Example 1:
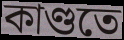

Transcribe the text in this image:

কাণ্ডতে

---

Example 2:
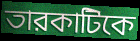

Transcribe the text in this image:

তারকাটিকে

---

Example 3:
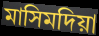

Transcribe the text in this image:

মাসিমদিয়া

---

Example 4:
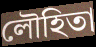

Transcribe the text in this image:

লৌহিতা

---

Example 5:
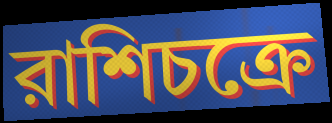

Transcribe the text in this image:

রাশিচক্রে